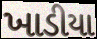
ખાડીયા